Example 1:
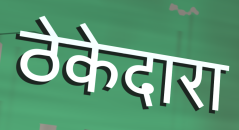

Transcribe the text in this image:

ठेकेदारा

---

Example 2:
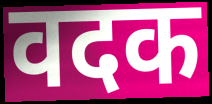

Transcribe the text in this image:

वदक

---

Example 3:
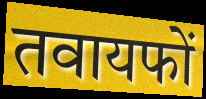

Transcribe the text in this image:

तवायफों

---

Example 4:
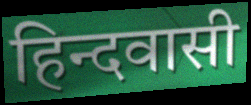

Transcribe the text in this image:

हिन्दवासी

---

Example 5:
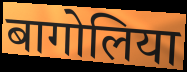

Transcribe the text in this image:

बागोलिया